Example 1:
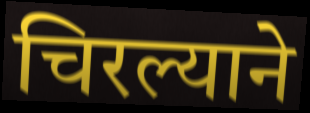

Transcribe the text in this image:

चिरल्याने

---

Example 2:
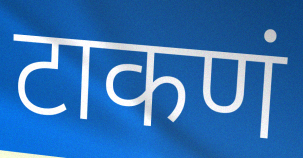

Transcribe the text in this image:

टाकणं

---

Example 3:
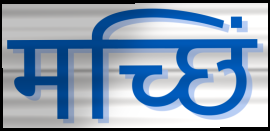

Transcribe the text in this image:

मच्छिं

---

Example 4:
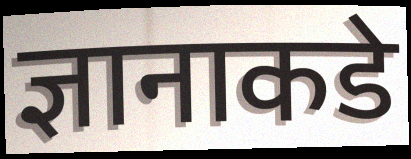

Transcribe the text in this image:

ज्ञानाकडे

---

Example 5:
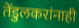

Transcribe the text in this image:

तेंडुलकरांनाही